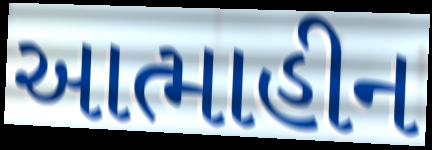
આત્માહીન